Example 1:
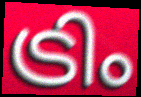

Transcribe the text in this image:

ട്രിം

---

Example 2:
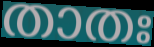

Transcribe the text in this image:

താതഃ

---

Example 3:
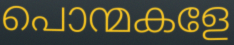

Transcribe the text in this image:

പൊന്മകളേ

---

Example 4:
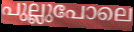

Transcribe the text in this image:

പുല്ലുപോലെ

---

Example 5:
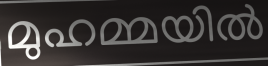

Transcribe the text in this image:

മുഹമ്മയിൽ